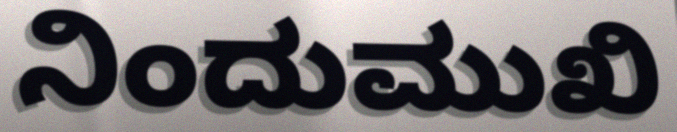
ನಿಂದುಮುಖಿ